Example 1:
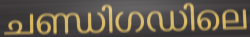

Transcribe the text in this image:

ചണ്ഡിഗഡിലെ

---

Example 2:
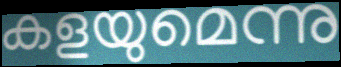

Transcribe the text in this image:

കളയുമെന്നു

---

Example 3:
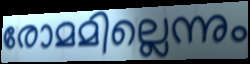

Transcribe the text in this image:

രോമമില്ലെന്നും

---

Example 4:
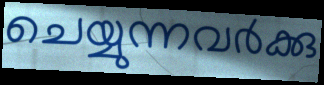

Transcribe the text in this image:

ചെയ്യുന്നവർക്കു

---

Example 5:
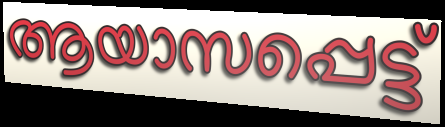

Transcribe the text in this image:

ആയാസപ്പെട്ട്